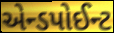
એન્ડપોઈન્ટ